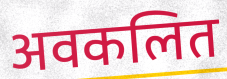
अवकलित